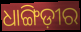
ଧାଙ୍ଗିଡ଼ୀର